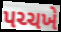
પચ્ચખે